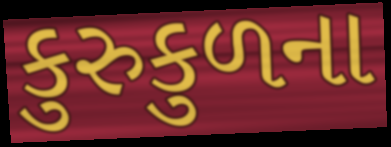
કુરુકુળના